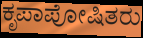
ಕೃಪಾಪೋಷಿತರು